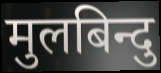
मुलबिन्दु